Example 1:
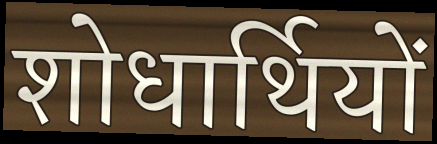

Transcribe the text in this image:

शोधार्थियों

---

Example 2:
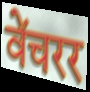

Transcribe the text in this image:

वेंचरर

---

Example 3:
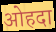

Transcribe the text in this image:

ओहदा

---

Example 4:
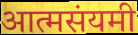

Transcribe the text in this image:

आत्मसंयमी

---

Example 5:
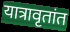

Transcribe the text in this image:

यात्रावृतांत